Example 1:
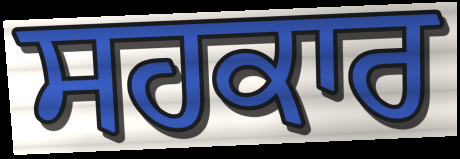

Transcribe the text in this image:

ਸਹਕਾਰ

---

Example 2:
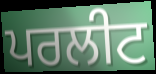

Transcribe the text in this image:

ਪਰਲੀਟ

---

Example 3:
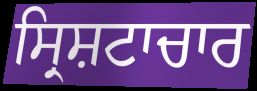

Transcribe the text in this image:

ਸ੍ਰਿਸ਼ਟਾਚਾਰ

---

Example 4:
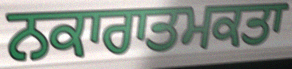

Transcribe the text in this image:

ਨਕਾਰਾਤਮਕਤਾ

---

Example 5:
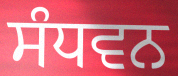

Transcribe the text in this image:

ਸੰਧਵਨ